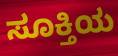
ಸೂಕ್ತಿಯ